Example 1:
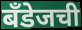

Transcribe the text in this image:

बँडेजची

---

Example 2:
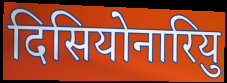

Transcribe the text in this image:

दिसियोनारियु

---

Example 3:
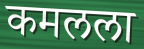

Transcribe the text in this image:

कमलला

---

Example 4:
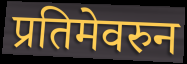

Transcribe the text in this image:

प्रतिमेवरुन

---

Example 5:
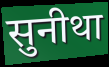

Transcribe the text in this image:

सुनीथा